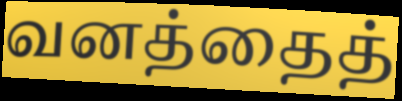
வனத்தைத்